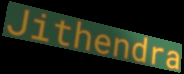
Jithendra